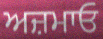
ਅਜ਼ਮਾਓ